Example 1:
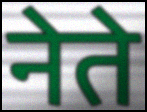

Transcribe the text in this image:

नेते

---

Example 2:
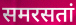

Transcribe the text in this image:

समरसतां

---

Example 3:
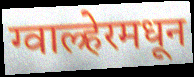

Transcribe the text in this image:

ग्वाल्हेरमधून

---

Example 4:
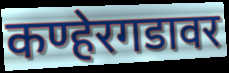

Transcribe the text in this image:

कण्हेरगडावर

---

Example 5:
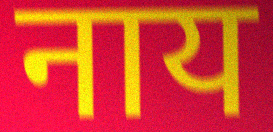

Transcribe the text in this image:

नाय